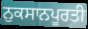
ਨੁਕਸਾਨਪੂਰਤੀ